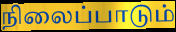
நிலைப்பாடும்